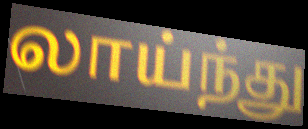
லாய்ந்து